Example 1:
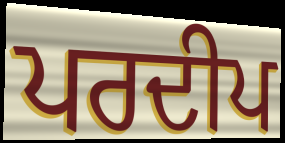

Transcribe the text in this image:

ਪਰਦੀਪ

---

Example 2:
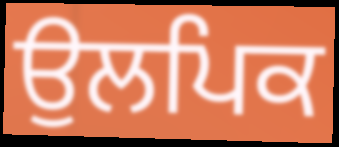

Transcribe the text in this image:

ਉਲਪਿਕ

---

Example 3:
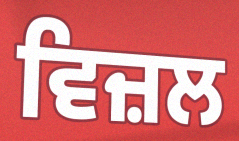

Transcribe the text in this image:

ਵਿਜ਼ਲ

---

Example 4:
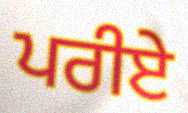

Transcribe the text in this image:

ਪਰੀਏ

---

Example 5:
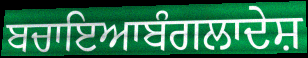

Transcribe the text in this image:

ਬਚਾਇਆਬੰਗਲਾਦੇਸ਼